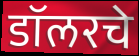
डॉलरचे